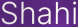
Shahi